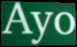
Ayo